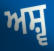
ਅਸ਼੍ਵ